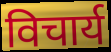
विचार्य